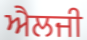
ਐਲਜੀ